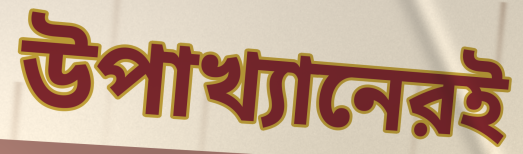
উপাখ্যানেরই